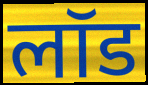
लॉड